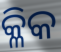
କ୍ଳିକ